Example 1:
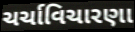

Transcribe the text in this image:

ચર્ચાવિચારણા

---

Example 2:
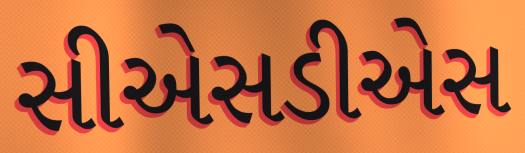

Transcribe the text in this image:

સીએસડીએસ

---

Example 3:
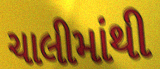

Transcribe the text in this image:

ચાલીમાંથી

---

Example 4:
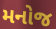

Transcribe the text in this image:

મનોજ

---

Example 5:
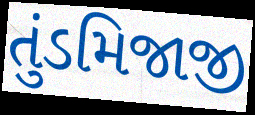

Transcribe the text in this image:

તુંડમિજાજી